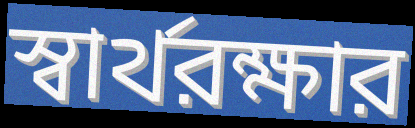
স্বার্থরক্ষার